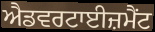
ਐਡਵਰਟਾਈਜ਼ਮੈਂਟ